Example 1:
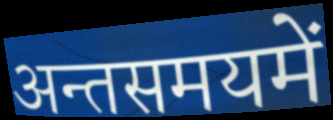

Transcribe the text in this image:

अन्तसमयमें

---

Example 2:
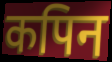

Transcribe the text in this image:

कपिन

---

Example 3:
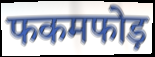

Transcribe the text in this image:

फकमफोड़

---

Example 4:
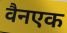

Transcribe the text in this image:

वैनएक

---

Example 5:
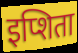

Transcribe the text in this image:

इप्शिता